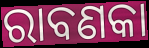
ରାବଣକା